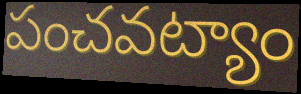
పంచవట్యాం